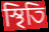
স্থিতি